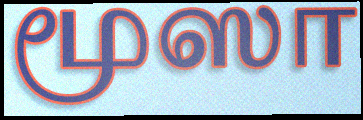
மூஸா